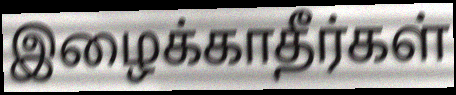
இழைக்காதீர்கள்